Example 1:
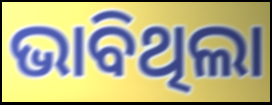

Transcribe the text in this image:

ଭାବିଥିଲା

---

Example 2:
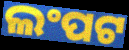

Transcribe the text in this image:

ଲଂପଟ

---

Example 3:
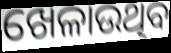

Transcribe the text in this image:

ଖେଳାଉଥିବ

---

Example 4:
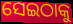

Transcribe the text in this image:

ସେଇଠାକୁ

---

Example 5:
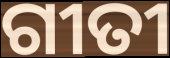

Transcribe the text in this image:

ଗୀତୀ